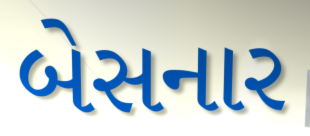
બેસનાર